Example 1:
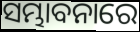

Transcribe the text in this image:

ସମ୍ଭାବନାରେ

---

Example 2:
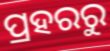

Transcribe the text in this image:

ପ୍ରହରରୁ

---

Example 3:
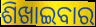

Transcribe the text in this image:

ଶିଖାଇବାର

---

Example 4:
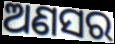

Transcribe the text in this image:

ଅଣସର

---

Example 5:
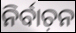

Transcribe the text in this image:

ନିର୍ବାଚ଼ନ